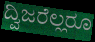
ದ್ವಿಜರೆಲ್ಲರೂ